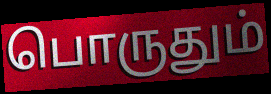
பொருதும்